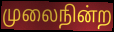
முலைநின்ற